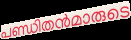
പണ്ഡിതൻമാരുടെ